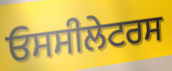
ਓਸਸੀਲੇਟਰਸ